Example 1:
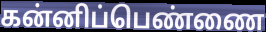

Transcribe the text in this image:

கன்னிப்பெண்ணை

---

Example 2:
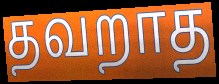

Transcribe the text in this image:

தவறாத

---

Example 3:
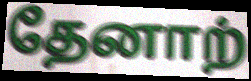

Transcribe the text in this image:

தேனாற்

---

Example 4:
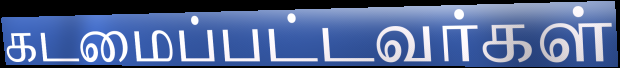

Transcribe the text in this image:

கடமைப்பட்டவர்கள்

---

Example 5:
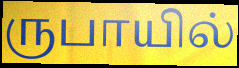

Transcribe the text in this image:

ருபாயில்